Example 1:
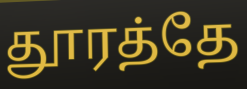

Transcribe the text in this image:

தூரத்தே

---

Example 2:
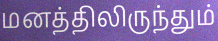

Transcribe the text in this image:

மனத்திலிருந்தும்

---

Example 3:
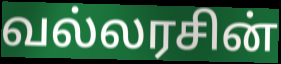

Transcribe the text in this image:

வல்லரசின்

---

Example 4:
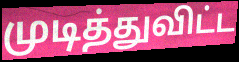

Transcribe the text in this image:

முடித்துவிட்ட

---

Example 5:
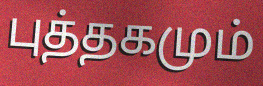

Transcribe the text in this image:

புத்தகமும்